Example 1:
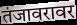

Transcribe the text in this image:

तंजावरावर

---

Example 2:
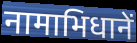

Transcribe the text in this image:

नामाभिधानें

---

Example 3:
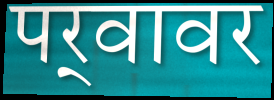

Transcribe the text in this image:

पर्वावर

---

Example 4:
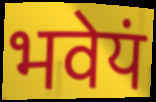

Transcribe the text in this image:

भवेयं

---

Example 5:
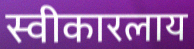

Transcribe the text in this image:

स्वीकारलाय